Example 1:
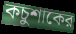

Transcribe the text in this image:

কচুশাকের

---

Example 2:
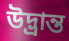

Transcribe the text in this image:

উদ্ভ্রান্ত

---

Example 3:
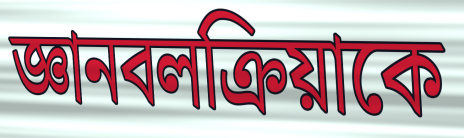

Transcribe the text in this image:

জ্ঞানবলক্রিয়াকে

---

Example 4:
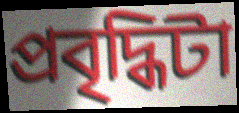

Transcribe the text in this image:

প্রবৃদ্ধিটা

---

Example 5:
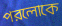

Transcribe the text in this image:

পরলোকে